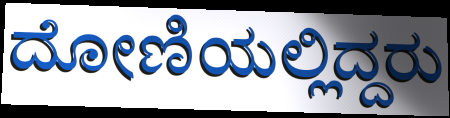
ದೋಣಿಯಲ್ಲಿದ್ದರು